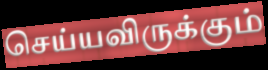
செய்யவிருக்கும்